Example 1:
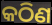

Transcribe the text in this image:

କଠିଣ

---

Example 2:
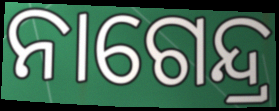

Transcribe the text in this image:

ନାଗେନ୍ଦ୍ର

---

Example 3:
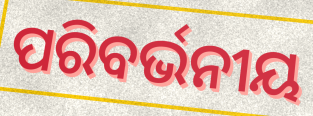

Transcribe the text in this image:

ପରିବର୍ଭନୀୟ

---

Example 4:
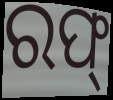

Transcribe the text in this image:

ରଫ୍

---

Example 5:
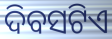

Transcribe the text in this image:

ଦିବସଟିଏ